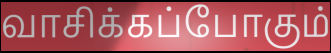
வாசிக்கப்போகும்